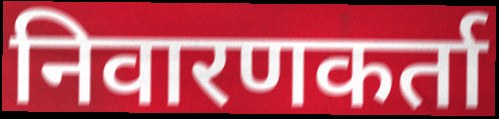
निवारणकर्ता